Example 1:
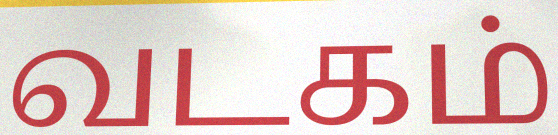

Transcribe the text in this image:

வடகம்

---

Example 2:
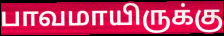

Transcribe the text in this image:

பாவமாயிருக்கு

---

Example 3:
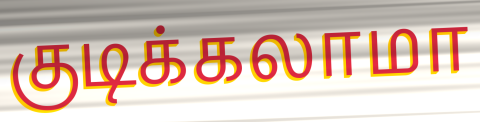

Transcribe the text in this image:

குடிக்கலாமா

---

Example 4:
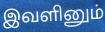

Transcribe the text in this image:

இவளினும்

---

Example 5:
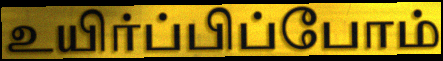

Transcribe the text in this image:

உயிர்ப்பிப்போம்